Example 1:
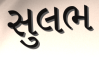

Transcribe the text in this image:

સુલભ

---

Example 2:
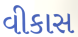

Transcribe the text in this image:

વીકાસ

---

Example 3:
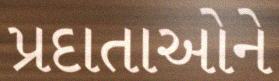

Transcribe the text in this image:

પ્રદાતાઓને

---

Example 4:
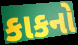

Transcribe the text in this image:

કાકનો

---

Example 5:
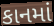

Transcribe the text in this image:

કાનમાં